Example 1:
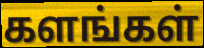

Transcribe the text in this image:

களங்கள்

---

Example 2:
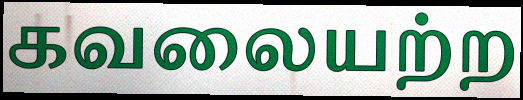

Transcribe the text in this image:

கவலையற்ற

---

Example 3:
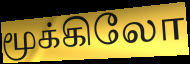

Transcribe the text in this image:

மூக்கிலோ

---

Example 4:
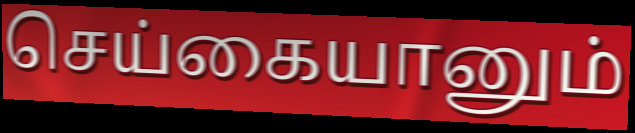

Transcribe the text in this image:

செய்கையானும்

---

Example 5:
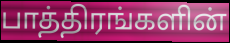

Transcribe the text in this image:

பாத்திரங்களின்